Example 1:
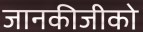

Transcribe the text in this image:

जानकीजीको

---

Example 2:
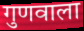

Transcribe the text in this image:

गुणवाला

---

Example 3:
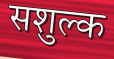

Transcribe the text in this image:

सशुल्क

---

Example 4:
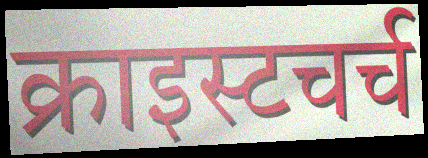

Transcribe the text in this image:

क्राइस्टचर्च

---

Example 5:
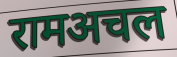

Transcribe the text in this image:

रामअचल